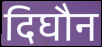
दिघौन